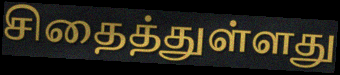
சிதைத்துள்ளது